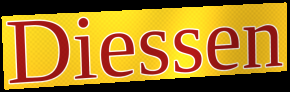
Diessen